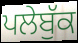
ਪਲੇਬੁੱਕ